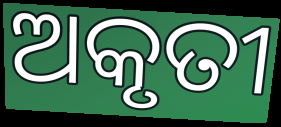
ଅକୃତୀ